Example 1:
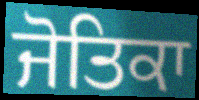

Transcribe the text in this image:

ਜੋਤਿਕਾ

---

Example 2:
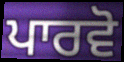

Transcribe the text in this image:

ਪਾਰਵੋ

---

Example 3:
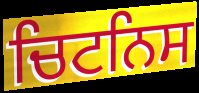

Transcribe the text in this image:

ਚਿਟਨਿਸ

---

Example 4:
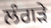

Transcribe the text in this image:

ਲੰਗੜੇ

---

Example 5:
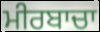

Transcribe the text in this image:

ਮੀਰਬਾਚਾ